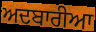
ਅਦਬਾਰੀਆ